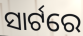
ସାର୍ଟରେ